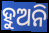
ହୁଅନି